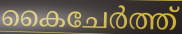
കൈചേർത്ത്